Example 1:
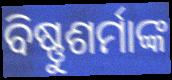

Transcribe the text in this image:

ବିଷ୍ଣୁଶର୍ମାଙ୍କ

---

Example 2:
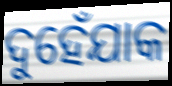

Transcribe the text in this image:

ଦୁହେଁଯାକ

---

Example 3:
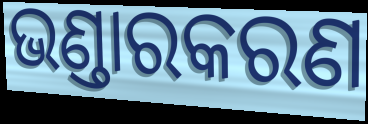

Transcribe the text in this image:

ଭଣ୍ଡାରକରଣ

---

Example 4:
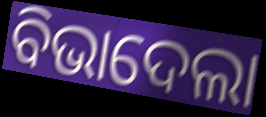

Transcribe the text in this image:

ବିଭାଦେଲା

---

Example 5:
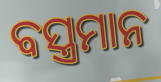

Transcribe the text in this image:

ବସ୍ତ୍ରମାନ